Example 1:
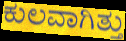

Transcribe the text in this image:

ಕುಲವಾಗಿತ್ತು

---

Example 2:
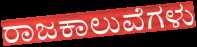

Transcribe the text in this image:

ರಾಜಕಾಲುವೆಗಳು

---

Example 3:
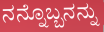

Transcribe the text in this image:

ನನ್ನೊಬ್ಬನನ್ನು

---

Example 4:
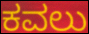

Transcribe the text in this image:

ಕವಲು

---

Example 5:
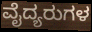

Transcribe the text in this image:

ವೈದ್ಯರುಗಳ